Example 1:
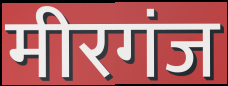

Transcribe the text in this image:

मीरगंज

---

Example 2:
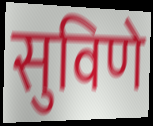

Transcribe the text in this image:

सुविणे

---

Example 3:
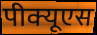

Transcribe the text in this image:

पीक्यूएस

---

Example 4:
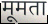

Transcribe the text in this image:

मूमता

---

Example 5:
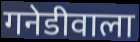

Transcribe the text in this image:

गनेडीवाला